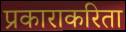
प्रकाराकरिता